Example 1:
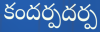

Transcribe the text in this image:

కందర్పదర్ప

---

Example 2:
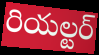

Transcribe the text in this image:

రియల్టర్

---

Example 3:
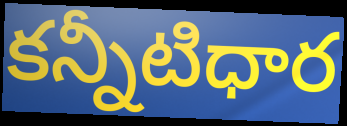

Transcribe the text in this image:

కన్నీటిధార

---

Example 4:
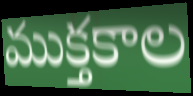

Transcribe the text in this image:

ముక్తకాల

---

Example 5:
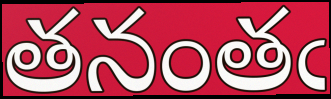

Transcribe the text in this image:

తనంతఁ